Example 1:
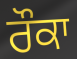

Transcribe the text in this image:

ਰੌਕਾ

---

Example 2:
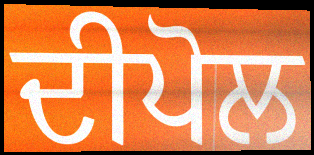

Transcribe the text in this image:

ਦੀਪੋਲ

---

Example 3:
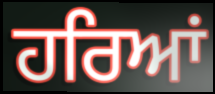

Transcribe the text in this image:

ਹਰਿਆਂ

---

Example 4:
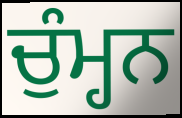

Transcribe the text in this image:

ਚੁੰਮ੍ਹਨ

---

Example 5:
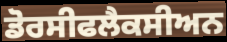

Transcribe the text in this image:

ਡੋਰਸੀਫਲੈਕਸੀਅਨ